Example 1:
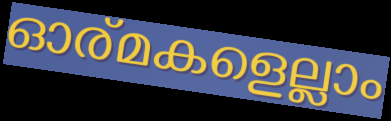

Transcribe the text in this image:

ഓര്മകളെല്ലാം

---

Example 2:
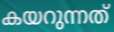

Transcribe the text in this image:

കയറുന്നത്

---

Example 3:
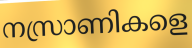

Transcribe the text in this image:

നസ്രാണികളെ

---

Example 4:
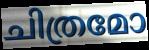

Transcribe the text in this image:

ചിത്രമോ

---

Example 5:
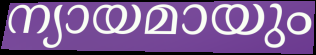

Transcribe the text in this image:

ന്യായമായും